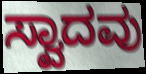
ಸ್ವಾದವು